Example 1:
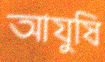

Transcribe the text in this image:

আযুষি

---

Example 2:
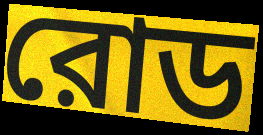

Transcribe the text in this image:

রোড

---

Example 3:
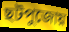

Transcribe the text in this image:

ছটপুজোয়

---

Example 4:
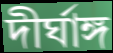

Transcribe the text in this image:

দীর্ঘাঙ্গ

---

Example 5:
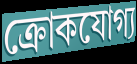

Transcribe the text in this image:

ক্রোকযোগ্য